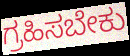
ಗ್ರಹಿಸಬೇಕು